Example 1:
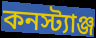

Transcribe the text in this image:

কনস্ট্যাঞ্জ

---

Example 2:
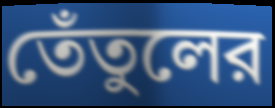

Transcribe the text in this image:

তেঁতুলের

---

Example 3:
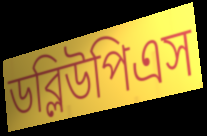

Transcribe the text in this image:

ডব্লিউপিএস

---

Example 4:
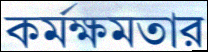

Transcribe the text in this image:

কর্মক্ষমতার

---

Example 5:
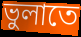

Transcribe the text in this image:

ভুলাতে